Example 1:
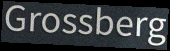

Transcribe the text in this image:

Grossberg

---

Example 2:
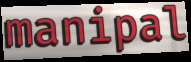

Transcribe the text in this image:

manipal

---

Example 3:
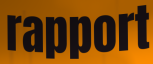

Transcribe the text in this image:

rapport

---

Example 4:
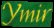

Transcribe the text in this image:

Ymir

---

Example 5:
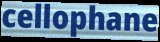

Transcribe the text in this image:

cellophane